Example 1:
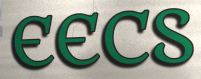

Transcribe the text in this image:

EECS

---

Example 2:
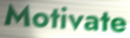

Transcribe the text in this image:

Motivate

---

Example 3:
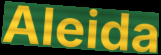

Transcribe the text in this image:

Aleida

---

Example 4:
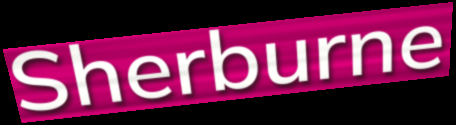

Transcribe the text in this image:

Sherburne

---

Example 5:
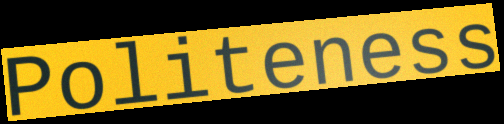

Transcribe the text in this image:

Politeness